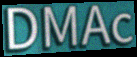
DMAc